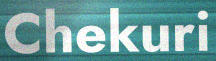
Chekuri